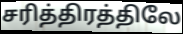
சரித்திரத்திலே